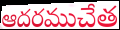
ఆదరముచేత